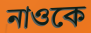
নাওকে